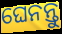
ଘେନନ୍ତୁ